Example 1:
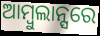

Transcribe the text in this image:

ଆମ୍ବୁଲାନ୍ସରେ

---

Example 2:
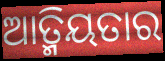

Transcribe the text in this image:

ଆତ୍ମିୟତାର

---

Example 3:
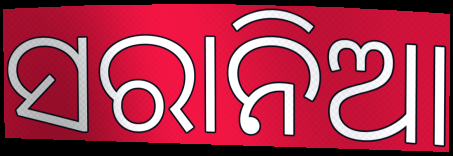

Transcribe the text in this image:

ସରାନିଆ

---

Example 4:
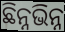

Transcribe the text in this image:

ଛିନ୍ନଭିନ୍ନ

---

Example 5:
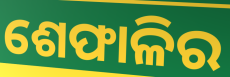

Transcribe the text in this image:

ଶେଫାଳିର